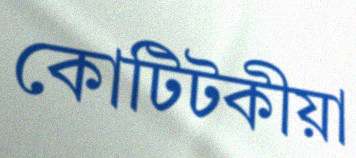
কোটিটকীয়া